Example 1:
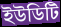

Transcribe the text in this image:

ইউডিটি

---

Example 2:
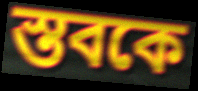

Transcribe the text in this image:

স্তবকে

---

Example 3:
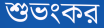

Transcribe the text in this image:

শুভংকর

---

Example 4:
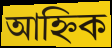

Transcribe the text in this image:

আহ্নিক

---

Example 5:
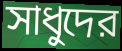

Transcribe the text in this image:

সাধুদের